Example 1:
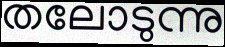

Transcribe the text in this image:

തലോടുന്നു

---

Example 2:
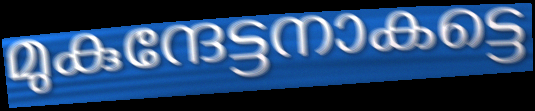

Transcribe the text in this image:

മുകുന്ദേട്ടനാകട്ടെ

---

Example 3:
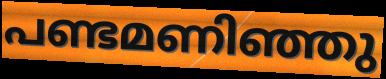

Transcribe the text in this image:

പണ്ടമണിഞ്ഞു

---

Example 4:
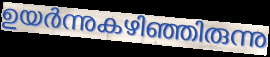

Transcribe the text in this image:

ഉയർന്നുകഴിഞ്ഞിരുന്നു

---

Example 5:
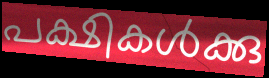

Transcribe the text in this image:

പക്ഷികൾക്കു